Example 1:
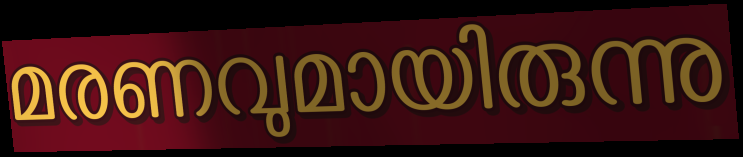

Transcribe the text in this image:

മരണവുമായിരുന്നു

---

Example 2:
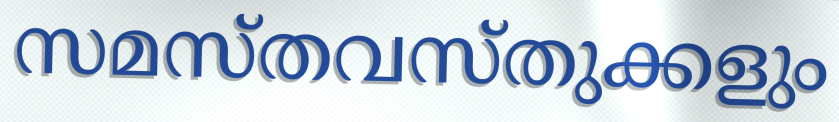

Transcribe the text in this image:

സമസ്തവസ്തുക്കളും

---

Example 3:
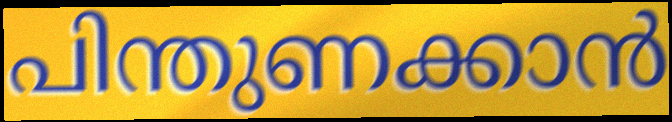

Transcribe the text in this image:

പിന്തുണക്കാൻ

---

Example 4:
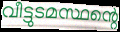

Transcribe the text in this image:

വീട്ടുടമസ്ഥന്റെ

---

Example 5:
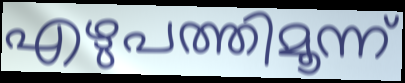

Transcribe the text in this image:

എഴുപത്തിമൂന്ന്